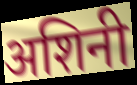
अशिनी